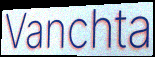
Vanchta